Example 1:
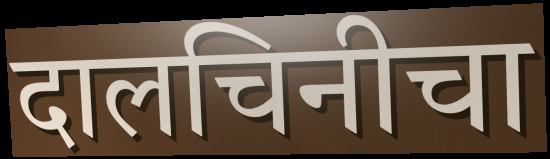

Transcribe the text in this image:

दालचिनीचा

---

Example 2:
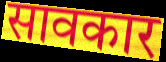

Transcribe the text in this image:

सावकार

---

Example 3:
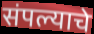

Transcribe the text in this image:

संपल्याचे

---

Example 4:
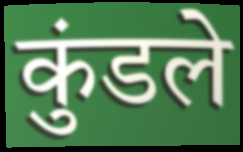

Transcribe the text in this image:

कुंडले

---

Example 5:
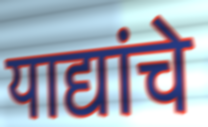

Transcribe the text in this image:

याद्यांचे